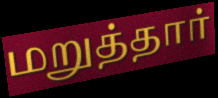
மறுத்தார்